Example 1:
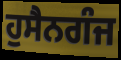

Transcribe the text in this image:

ਹੁਸੈਨਗੰਜ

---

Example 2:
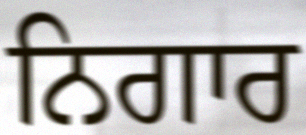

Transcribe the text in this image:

ਨਿਗਾਰ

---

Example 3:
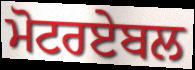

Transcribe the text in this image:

ਮੋਟਰਏਬਲ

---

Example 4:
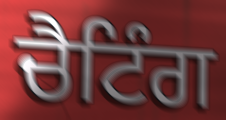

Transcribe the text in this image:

ਚੈਟਿੰਗ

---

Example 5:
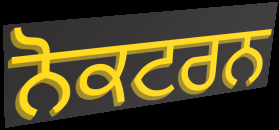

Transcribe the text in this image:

ਨੋਕਟਰਨ